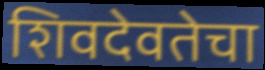
शिवदेवतेचा